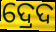
ଦ୍ରେଦ